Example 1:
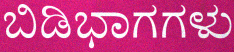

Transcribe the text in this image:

ಬಿಡಿಭಾಗಗಳು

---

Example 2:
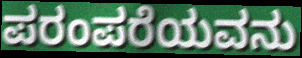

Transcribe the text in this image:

ಪರಂಪರೆಯವನು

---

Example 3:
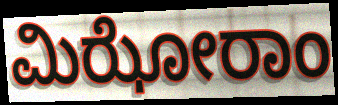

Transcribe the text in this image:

ಮಿಝೋರಾಂ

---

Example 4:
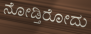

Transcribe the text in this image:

ನೋಡ್ತಿರೋದು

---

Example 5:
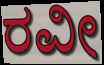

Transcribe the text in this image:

ರವೀ